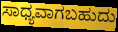
ಸಾಧ್ಯವಾಗಬಹುದು